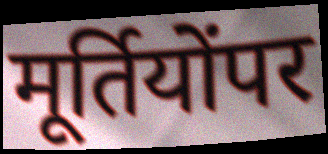
मूर्तियोंपर